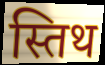
स्तिथ